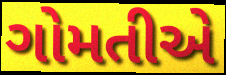
ગોમતીએ